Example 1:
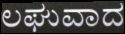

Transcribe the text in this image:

ಲಘುವಾದ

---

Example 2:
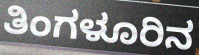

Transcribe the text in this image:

ತಿಂಗಳೂರಿನ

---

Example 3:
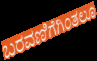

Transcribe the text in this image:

ಬರವಣಿಗೆಗಿಂತಲೂ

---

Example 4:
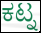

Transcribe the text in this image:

ಕಟ್ನ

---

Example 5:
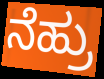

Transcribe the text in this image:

ನೆಹ್ರು